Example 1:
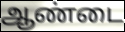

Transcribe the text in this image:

ஆண்டை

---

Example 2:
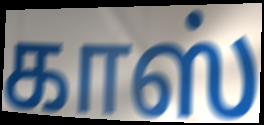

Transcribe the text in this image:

காஸ்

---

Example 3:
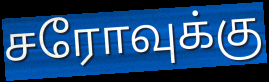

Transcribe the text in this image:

சரோவுக்கு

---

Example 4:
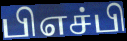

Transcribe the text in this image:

பிஎச்பி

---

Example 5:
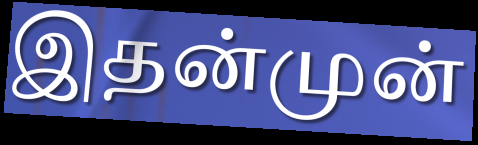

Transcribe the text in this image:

இதன்முன்